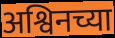
अश्विनच्या